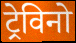
ट्रेविनो